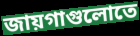
জায়গাগুলোতে